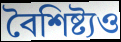
বৈশিষ্ট্যও